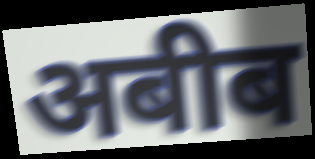
अबीब